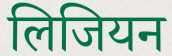
लिजियन